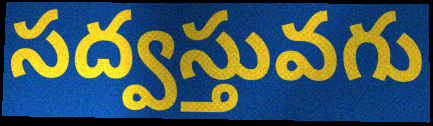
సద్వస్తువగు